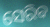
ସେରିବ